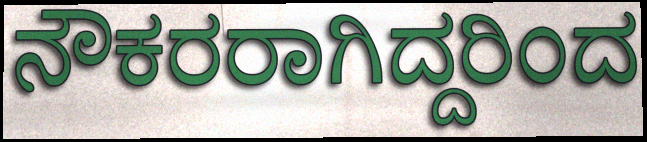
ನೌಕರರಾಗಿದ್ದರಿಂದ